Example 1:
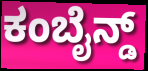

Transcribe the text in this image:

ಕಂಬೈನ್ಡ್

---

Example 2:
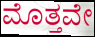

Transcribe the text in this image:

ಮೊತ್ತವೇ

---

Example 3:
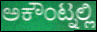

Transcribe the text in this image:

ಅಕೌಂಟ್ನಲ್ಲಿ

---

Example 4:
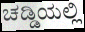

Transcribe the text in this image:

ಚಡ್ಡಿಯಲ್ಲಿ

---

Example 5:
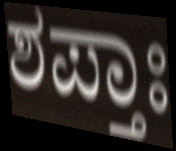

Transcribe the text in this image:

ಶಪ್ತಾಃ